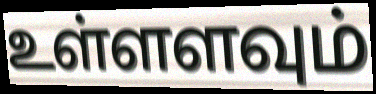
உள்ளளவும்